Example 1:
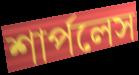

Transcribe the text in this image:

শার্পলেস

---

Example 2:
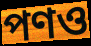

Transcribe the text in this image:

পণও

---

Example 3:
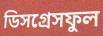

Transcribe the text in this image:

ডিসগ্রেসফুল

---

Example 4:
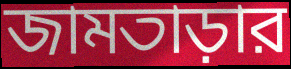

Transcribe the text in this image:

জামতাড়ার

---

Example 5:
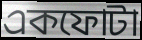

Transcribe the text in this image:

একফোটা